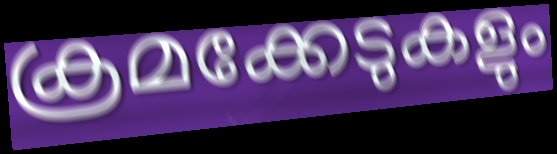
ക്രമക്കേടുകളും